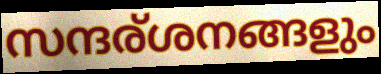
സന്ദര്ശനങ്ങളും